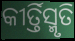
କୀର୍ତ୍ତିସ୍ମୃତି